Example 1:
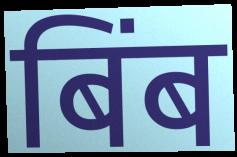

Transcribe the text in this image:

बिंब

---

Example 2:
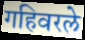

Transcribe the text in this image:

गहिवरले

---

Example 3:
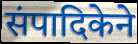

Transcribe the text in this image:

संपादिकेने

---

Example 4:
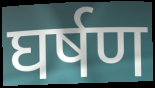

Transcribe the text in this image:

घर्षण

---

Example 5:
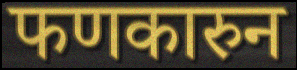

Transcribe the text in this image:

फणकारुन